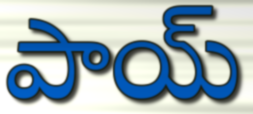
పాయ్